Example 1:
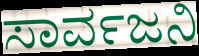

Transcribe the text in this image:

ಸಾರ್ವಜನಿ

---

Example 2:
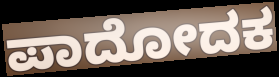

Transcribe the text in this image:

ಪಾದೋದಕ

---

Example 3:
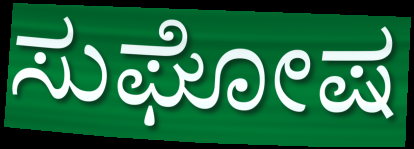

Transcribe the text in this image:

ಸುಘೋಷ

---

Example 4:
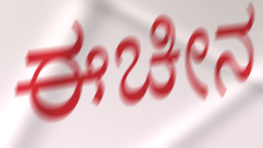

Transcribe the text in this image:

ಈಚೀನ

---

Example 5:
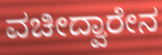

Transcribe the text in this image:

ವಚೀದ್ವಾರೇನ